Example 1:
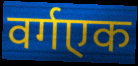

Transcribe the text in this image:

वर्गएक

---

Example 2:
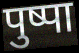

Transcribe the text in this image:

पुष्पा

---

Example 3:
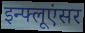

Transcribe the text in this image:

इन्फ्लूएंसर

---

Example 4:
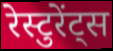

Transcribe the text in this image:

रेस्टुरेंट्स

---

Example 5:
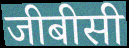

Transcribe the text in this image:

जीबीसी